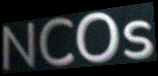
NCOs